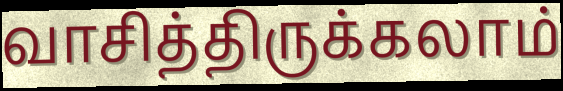
வாசித்திருக்கலாம்